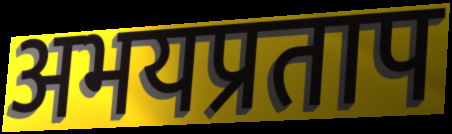
अभयप्रताप